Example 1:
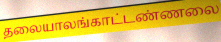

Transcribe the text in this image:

தலையாலங்காட்டண்ணலை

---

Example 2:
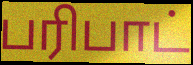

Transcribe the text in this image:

பரிபாட்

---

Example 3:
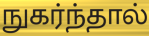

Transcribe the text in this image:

நுகர்ந்தால்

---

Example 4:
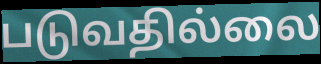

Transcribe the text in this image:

படுவதில்லை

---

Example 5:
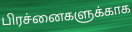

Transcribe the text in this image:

பிரச்னைகளுக்காக